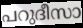
പറുദീസാ